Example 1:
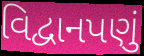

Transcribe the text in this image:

વિદ્વાનપણું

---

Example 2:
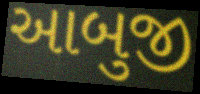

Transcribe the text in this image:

આબુજી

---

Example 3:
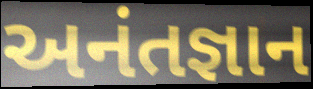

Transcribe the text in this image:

અનંતજ્ઞાન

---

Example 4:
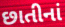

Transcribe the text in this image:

છાતીનાં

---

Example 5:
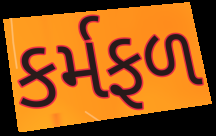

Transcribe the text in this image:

કર્મફળ